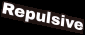
Repulsive